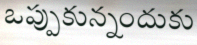
ఒప్పుకున్నందుకు